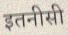
इतनीसी